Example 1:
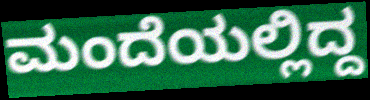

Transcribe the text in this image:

ಮಂದೆಯಲ್ಲಿದ್ದ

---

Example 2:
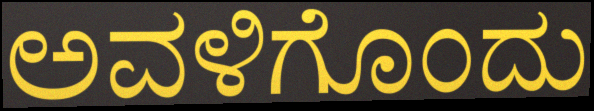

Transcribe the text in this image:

ಅವಳಿಗೊಂದು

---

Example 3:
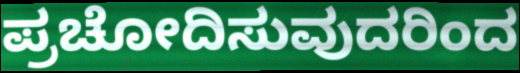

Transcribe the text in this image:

ಪ್ರಚೋದಿಸುವುದರಿಂದ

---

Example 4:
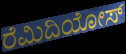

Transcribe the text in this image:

ರೆಮಿದಿಯೋಸ್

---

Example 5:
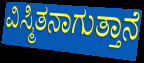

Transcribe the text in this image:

ವಿಸ್ಮಿತನಾಗುತ್ತಾನೆ